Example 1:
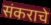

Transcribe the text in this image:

संकराचे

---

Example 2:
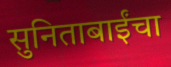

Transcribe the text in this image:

सुनिताबाईंचा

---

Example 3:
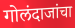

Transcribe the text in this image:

गोलंदाजांचा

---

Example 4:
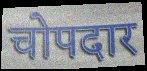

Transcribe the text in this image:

चोपदार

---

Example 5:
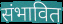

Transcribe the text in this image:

संभावित